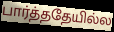
பார்த்ததேயில்ல